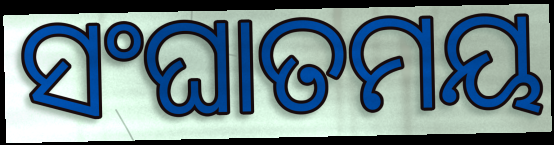
ସଂଘାତମୟ